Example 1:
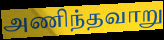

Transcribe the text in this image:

அணிந்தவாறு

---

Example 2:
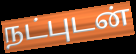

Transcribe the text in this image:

நட்புடன்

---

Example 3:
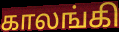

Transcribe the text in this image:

காலங்கி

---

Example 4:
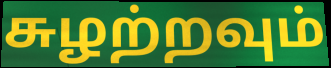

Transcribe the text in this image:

சுழற்றவும்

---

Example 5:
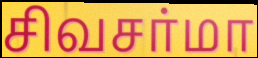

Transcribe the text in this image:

சிவசர்மா